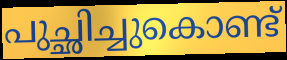
പുച്ഛിച്ചുകൊണ്ട്